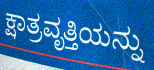
ಕ್ಷಾತ್ರವೃತ್ತಿಯನ್ನು